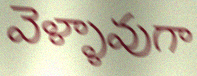
వెళ్ళావుగా